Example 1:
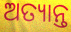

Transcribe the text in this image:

ଅତ୍ୟାନ୍ତ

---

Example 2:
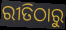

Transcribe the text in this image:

ରୀତିଠାରୁ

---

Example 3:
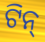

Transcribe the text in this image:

ଟିନ୍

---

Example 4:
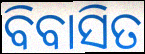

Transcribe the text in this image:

ବିବାସିତ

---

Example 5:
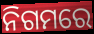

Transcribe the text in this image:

ନିଗମରେ